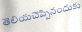
తెలియచెప్పినందుకు